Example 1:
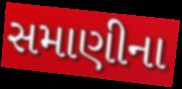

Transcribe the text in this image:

સમાણીના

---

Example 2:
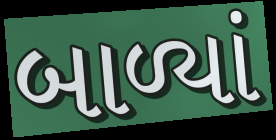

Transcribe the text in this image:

બાળ્યાં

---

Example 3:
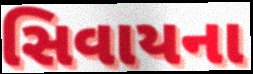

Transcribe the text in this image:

સિવાયના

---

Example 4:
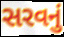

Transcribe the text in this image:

સરવનું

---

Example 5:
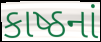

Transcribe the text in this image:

કાષ્ઠનાં